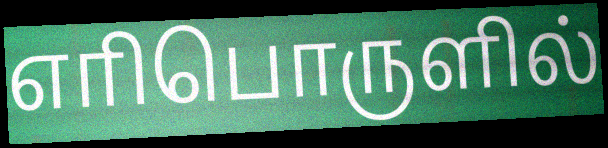
எரிபொருளில்